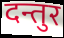
दन्तुर